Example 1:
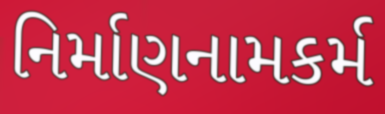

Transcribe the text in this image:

નિર્માણનામકર્મ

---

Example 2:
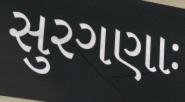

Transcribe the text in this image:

સુરગણાઃ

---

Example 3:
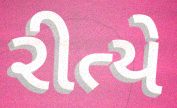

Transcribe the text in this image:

રીત્યે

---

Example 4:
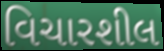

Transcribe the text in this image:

વિચારશીલ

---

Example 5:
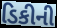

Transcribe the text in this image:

ડિકીની